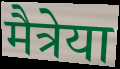
मैत्रेया